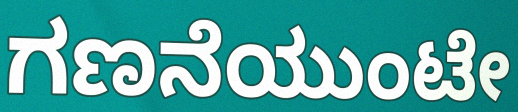
ಗಣನೆಯುಂಟೇ